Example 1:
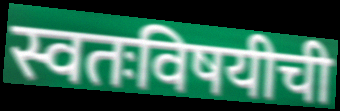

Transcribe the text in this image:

स्वतःविषयीची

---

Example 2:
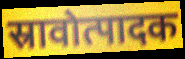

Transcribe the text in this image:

स्रावोत्पादक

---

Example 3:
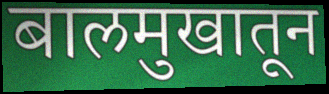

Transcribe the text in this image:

बालमुखातून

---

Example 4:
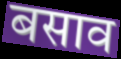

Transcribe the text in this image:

बसाव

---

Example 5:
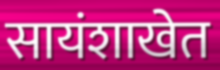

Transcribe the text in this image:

सायंशाखेत